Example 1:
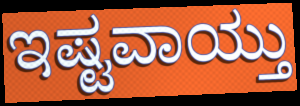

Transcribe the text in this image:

ಇಷ್ಟವಾಯ್ತು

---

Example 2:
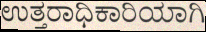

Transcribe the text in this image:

ಉತ್ತರಾಧಿಕಾರಿಯಾಗಿ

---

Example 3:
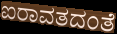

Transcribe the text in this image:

ಐರಾವತದಂತೆ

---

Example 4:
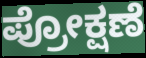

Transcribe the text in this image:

ಪ್ರೋಕ್ಷಣೆ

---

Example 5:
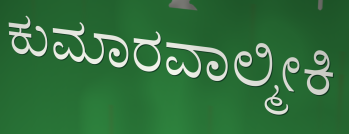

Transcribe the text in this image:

ಕುಮಾರವಾಲ್ಮೀಕಿ